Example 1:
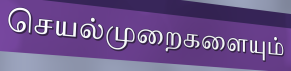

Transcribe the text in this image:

செயல்முறைகளையும்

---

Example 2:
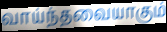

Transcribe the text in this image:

வாய்ந்தவையாகும்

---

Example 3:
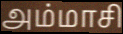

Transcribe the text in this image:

அம்மாசி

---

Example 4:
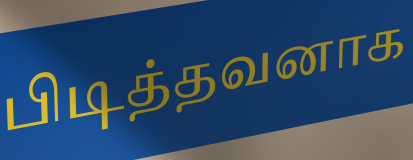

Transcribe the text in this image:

பிடித்தவனாக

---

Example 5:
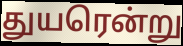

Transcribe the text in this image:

துயரென்று